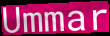
Ummar